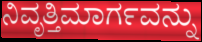
ನಿವೃತ್ತಿಮಾರ್ಗವನ್ನು